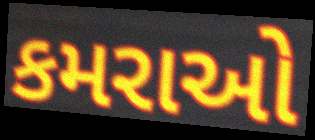
કમરાઓ